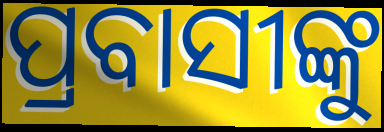
ପ୍ରବାସୀଙ୍କୁ